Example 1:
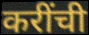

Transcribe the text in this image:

करींची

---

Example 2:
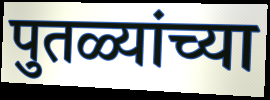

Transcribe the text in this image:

पुतळ्यांच्या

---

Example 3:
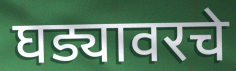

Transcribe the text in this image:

घड्यावरचे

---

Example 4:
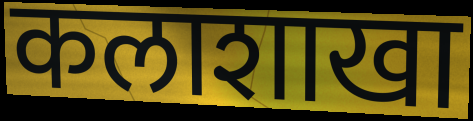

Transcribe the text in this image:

कलाशाखा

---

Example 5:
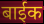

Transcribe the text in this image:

बाईक